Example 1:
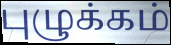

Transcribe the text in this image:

புழுக்கம்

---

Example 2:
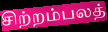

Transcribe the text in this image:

சிற்றம்பலத்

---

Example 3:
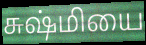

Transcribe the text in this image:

சுஷ்மியை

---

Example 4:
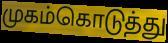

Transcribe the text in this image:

முகம்கொடுத்து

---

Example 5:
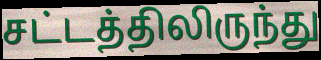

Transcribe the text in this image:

சட்டத்திலிருந்து